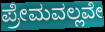
ಪ್ರೇಮವಲ್ಲವೇ